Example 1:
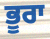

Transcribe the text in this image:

ਭੂਰਾ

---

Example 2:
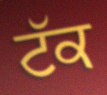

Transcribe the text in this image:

ਟੱਕ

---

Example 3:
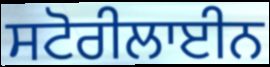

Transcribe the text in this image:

ਸਟੋਰੀਲਾਈਨ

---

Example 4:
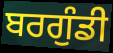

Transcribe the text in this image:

ਬਰਗੁੰਡੀ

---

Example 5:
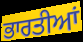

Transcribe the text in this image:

ਭਾਰਤੀਆਂ